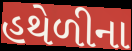
હથેળીના